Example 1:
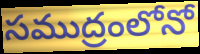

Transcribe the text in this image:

సముద్రంలోనో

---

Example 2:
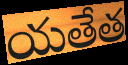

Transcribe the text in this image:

యతేత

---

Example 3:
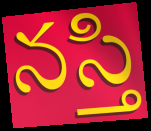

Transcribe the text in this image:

నస్తి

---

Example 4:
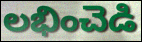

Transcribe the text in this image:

లభించెడి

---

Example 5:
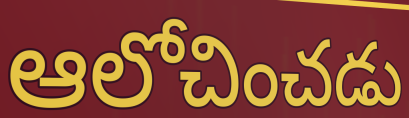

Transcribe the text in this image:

ఆలోచించడు